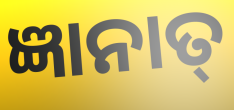
ଜ୍ଞାନାତ୍